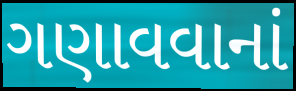
ગણાવવાનાં